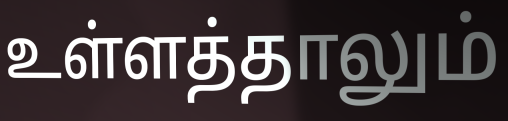
உள்ளத்தாலும்